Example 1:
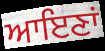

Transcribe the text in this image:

ਆਇਣਾਂ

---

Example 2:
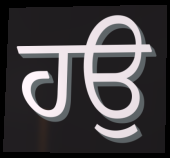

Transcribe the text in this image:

ਹਉ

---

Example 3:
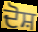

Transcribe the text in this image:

ਦੋਸ਼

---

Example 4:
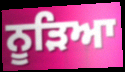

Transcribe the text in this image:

ਨੂੜਿਆ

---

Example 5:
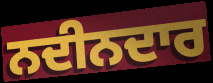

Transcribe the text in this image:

ਨਦੀਨਦਾਰ